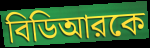
বিডিআরকে